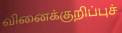
வினைக்குறிப்புச்